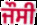
ਜੌਸੀ